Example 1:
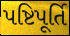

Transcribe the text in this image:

પષ્ટિપૂર્તિ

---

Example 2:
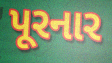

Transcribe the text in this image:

પૂરનાર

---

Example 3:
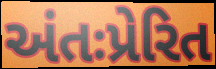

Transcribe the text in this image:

અંતઃપ્રેરિત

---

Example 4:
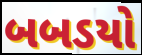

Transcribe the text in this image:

બબડયો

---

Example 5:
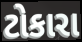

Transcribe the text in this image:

ટોકારા